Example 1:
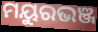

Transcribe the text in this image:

ମୟୁରଭଞ୍ଜ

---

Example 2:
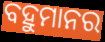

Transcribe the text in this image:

ବହୁମାନର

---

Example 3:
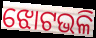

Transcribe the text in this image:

ଝୋଟଭଳି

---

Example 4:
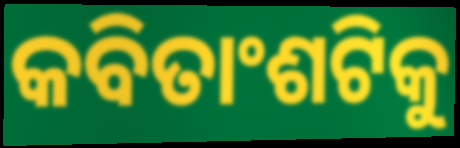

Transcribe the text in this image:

କବିତାଂଶଟିକୁ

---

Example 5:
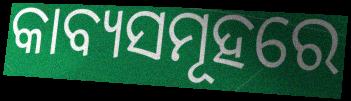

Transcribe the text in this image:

କାବ୍ୟସମୂହରେ